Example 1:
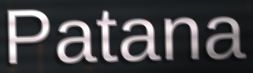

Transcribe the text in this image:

Patana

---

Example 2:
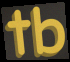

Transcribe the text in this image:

tb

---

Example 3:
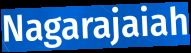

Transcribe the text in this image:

Nagarajaiah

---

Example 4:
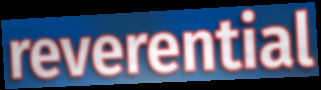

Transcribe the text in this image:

reverential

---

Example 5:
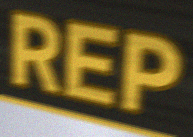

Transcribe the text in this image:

REP